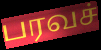
பரவச்